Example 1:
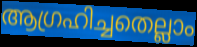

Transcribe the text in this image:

ആഗ്രഹിച്ചതെല്ലാം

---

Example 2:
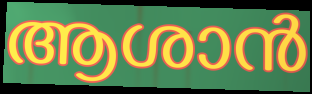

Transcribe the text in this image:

ആശാൻ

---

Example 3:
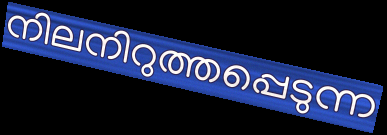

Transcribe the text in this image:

നിലനിറുത്തപ്പെടുന്ന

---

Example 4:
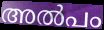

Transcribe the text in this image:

അൽപം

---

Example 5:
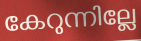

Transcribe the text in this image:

കേറുന്നില്ലേ